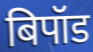
बिपॉड